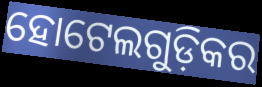
ହୋଟେଲଗୁଡ଼ିକର